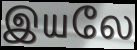
இயலே